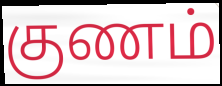
குணம்